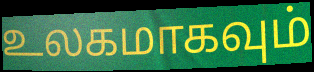
உலகமாகவும்